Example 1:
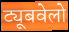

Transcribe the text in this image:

ट्यूबवेलो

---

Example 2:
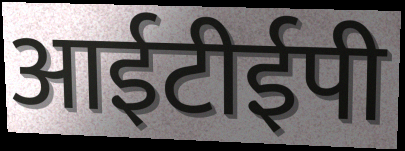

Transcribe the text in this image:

आईटीईपी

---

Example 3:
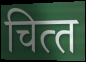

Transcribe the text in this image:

चित्‍त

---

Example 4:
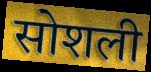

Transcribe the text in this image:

सोशली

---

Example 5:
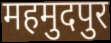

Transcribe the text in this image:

महमुदपुर